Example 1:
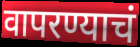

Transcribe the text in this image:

वापरण्याचं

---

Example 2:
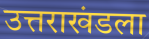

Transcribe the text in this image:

उत्तराखंडला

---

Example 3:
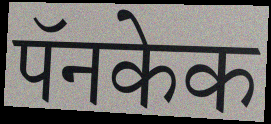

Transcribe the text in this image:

पॅनकेक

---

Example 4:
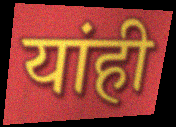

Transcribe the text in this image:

यांही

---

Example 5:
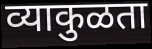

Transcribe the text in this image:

व्याकुळता